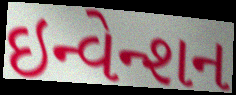
ઇન્વેન્શન